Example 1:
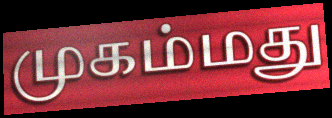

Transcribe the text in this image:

முகம்மது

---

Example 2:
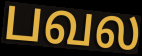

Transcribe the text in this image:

பவல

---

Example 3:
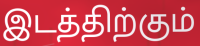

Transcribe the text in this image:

இடத்திற்கும்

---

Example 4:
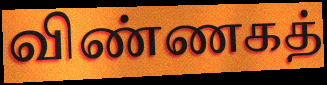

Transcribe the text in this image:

விண்ணகத்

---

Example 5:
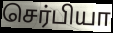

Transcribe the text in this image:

செர்பியா